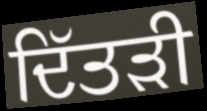
ਦਿੱਤੜੀ